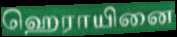
ஹெராயினை